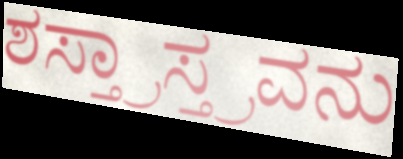
ಶಸ್ತ್ರಾಸ್ತ್ರವನು